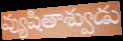
వ్యుషితాశ్వుడు